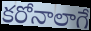
కరోనాలాగే